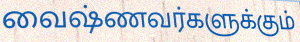
வைஷ்ணவர்களுக்கும்